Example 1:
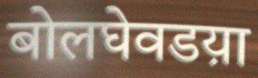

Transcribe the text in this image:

बोलघेवडय़ा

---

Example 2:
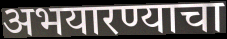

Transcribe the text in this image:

अभयारण्याचा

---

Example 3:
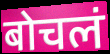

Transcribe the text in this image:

बोचलं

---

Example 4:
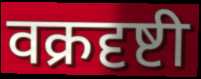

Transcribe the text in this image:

वक्रदृष्टी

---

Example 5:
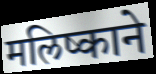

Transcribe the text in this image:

मलिष्काने